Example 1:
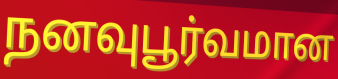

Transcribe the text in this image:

நனவுபூர்வமான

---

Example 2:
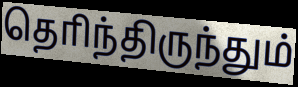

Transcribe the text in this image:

தெரிந்திருந்தும்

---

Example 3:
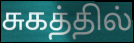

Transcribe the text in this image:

சுகத்தில்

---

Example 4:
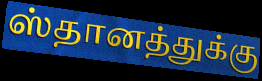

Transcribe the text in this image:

ஸ்தானத்துக்கு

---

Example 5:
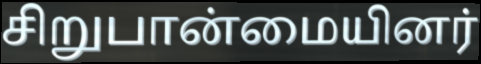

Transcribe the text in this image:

சிறுபான்மையினர்